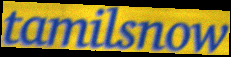
tamilsnow